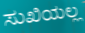
ಸುಖಿಯಲ್ಲ